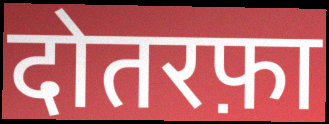
दोतरफ़ा